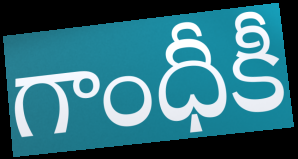
గాంధీకీ